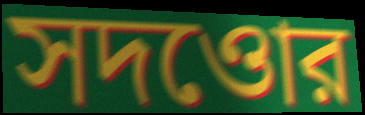
সদওোর